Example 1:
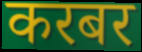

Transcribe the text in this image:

करबर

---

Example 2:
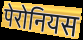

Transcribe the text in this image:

पेरोनियस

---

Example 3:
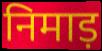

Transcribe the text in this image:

निमाड़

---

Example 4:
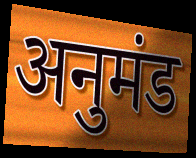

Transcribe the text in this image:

अनुमंड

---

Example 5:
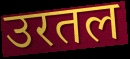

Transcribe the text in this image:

उरतल